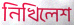
নিখিলেশ